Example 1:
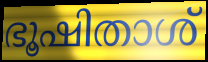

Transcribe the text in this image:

ഭൂഷിതാശ്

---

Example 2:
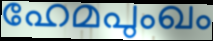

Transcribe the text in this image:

ഹേമപുംഖം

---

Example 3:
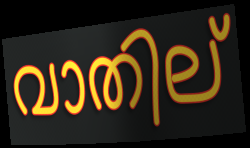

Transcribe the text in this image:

വാതില്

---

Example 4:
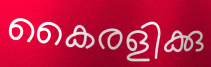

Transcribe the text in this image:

കൈരളിക്കു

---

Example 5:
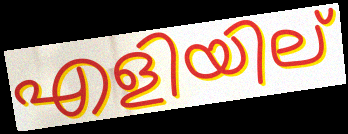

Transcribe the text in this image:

എളിയില്